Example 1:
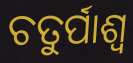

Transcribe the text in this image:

ଚତୁର୍ପାଶ୍ୱ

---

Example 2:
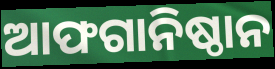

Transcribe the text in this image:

ଆଫଗାନିଷ୍ଠାନ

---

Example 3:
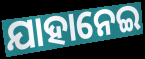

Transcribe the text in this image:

ଯାହାନେଇ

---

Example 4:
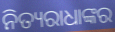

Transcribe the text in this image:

ନିତ୍ୟରାଧାଙ୍କର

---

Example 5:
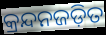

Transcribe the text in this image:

କ୍ରନ୍ଦନଜଡ଼ିତ